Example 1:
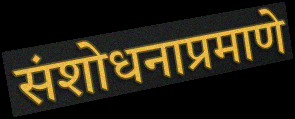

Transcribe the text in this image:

संशोधनाप्रमाणे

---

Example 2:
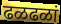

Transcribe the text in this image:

ढळढळां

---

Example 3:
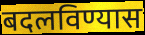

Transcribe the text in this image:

बदलविण्यास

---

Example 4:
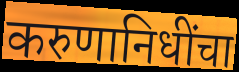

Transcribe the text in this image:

करुणानिधींचा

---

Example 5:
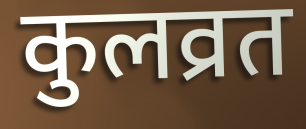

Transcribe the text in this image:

कुलव्रत